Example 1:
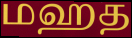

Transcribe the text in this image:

மஹத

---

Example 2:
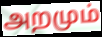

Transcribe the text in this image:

அறமும்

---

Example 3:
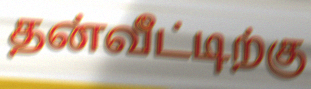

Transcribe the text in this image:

தன்வீட்டிற்கு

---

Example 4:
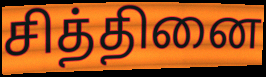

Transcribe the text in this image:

சித்தினை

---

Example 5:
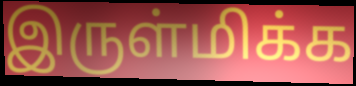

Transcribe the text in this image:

இருள்மிக்க